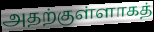
அதற்குள்ளாகத்